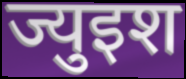
ज्युइश